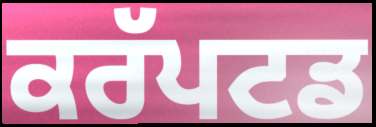
ਕਰੱਪਟਡ